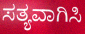
ಸತ್ಯವಾಗಿಸಿ